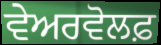
ਵੇਅਰਵੋਲਫ਼